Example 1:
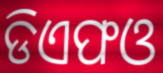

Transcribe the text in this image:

ଡିଏଫଓ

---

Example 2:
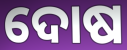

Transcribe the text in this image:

ଦୋଷ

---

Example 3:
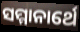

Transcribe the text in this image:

ସମ୍ମାନାର୍ଥେ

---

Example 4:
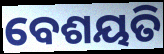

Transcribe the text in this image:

ବେଶୟତି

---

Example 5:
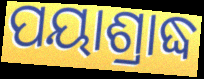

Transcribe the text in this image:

ପୟାଶ୍ରାଦ୍ଧ